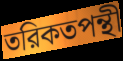
তরিকতপন্থী